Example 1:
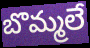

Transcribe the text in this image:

బొమ్మలే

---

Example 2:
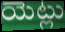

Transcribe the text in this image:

యెట్లు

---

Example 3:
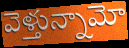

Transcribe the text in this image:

వెళ్తున్నామో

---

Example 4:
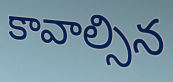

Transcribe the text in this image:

కావాల్సిన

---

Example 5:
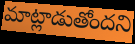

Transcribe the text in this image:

మాట్లాడుతోందని